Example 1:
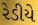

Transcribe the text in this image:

રેડીયે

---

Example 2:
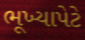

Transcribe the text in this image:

ભૂખ્યાપેટે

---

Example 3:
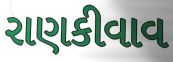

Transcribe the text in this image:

રાણકીવાવ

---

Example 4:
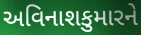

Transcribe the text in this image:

અવિનાશકુમારને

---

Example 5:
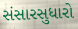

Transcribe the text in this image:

સંસારસુધારો